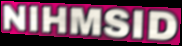
NIHMSID